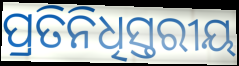
ପ୍ରତିନିଧିସ୍ତରୀୟ